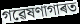
গৱেষণাগাৰত